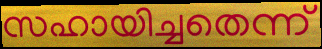
സഹായിച്ചതെന്ന്